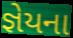
જ્ઞેયના